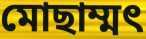
মোছাম্মৎ